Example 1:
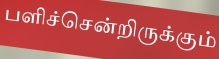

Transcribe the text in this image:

பளிச்சென்றிருக்கும்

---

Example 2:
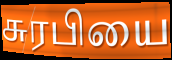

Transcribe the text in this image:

சுரபியை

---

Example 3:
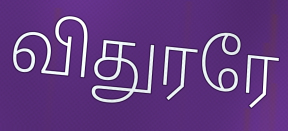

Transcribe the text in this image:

விதுரரே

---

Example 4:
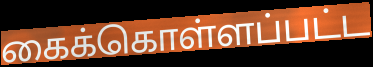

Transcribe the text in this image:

கைக்கொள்ளப்பட்ட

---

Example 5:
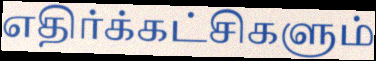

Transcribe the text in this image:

எதிர்க்கட்சிகளும்